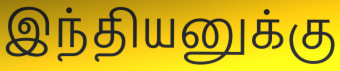
இந்தியனுக்கு